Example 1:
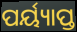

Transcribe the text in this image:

ପର୍ୟ୍ୟାପ୍ତ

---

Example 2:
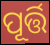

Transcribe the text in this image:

ପୂର୍ତ୍ତି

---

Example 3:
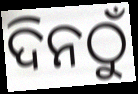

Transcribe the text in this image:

ଦିନଠୁଁ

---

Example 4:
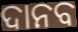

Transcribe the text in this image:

ଦାନବ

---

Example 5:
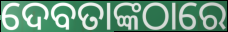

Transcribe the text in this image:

ଦେବତାଙ୍କଠାରେ